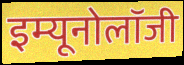
इम्यूनोलॉजी